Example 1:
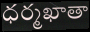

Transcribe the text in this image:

ధర్మఖాతా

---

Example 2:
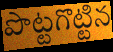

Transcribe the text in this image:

పొట్టగొట్టిన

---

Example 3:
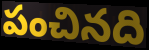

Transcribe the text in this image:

పంచినది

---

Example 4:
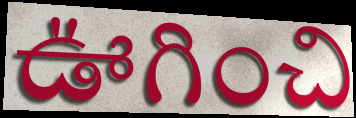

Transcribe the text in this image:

ఊగించి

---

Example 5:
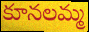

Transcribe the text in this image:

కూనలమ్మ